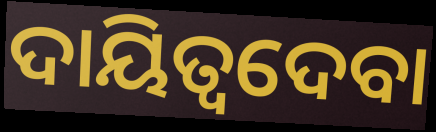
ଦାୟିତ୍ୱଦେବା